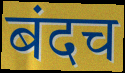
बंदच